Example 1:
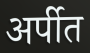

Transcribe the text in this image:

अर्पीत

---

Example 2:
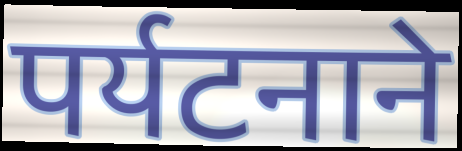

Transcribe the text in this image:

पर्यटनाने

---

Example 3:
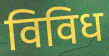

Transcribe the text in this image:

विविध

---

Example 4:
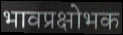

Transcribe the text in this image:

भावप्रक्षोभक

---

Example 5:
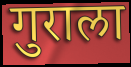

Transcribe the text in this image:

गुराला